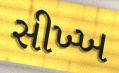
સીખ્ખ